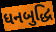
ધનબુદ્ધિ